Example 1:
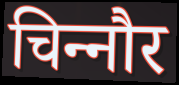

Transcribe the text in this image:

चिन्‍नौर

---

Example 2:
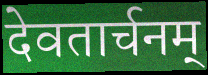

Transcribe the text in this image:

देवतार्चनम्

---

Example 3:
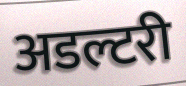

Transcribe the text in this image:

अडल्टरी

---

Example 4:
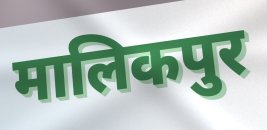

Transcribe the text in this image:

मालिकपुर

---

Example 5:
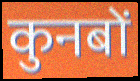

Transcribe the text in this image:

कुनबों